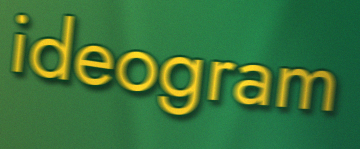
ideogram